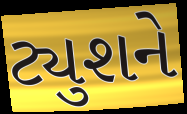
ટ્યુશને